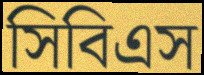
সিবিএস